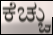
ಕೆಚ್ಚು